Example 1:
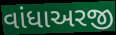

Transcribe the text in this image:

વાંધાઅરજી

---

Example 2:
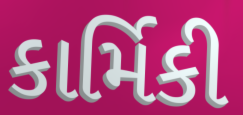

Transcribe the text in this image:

કાર્મિકી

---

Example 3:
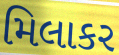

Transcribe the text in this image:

મિલાકર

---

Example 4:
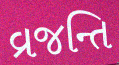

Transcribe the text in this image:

વ્રજન્તિ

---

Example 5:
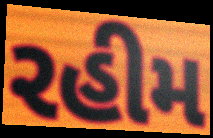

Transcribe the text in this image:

રહીમ